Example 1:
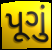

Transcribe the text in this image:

પૂગું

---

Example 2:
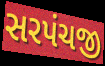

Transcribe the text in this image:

સરપંચજી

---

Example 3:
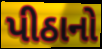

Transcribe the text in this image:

પીઠાનો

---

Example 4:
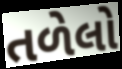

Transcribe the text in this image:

તળેલો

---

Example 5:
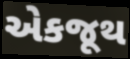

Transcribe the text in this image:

એકજૂથ